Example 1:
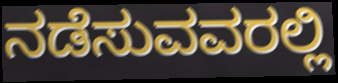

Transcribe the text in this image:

ನಡೆಸುವವರಲ್ಲಿ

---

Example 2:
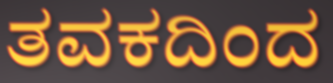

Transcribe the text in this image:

ತವಕದಿಂದ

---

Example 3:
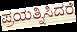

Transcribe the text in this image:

ಪ್ರಯತ್ನಿಸಿದರೆ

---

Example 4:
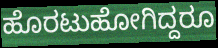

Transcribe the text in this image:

ಹೊರಟುಹೋಗಿದ್ದರೂ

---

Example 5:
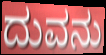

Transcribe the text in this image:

ದುವನು